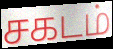
சகடம்